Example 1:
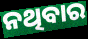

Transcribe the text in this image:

ନଥିବାର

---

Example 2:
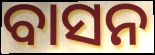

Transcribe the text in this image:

ବାସନ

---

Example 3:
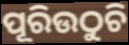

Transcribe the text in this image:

ପୂରିଉଠୁଚି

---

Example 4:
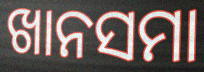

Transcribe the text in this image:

ଖାନସମା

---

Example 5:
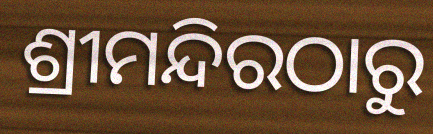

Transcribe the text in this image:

ଶ୍ରୀମନ୍ଦିରଠାରୁ